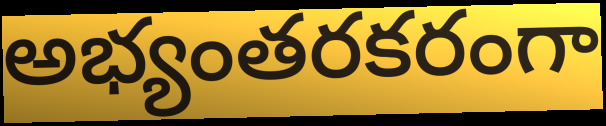
అభ్యంతరకరంగా